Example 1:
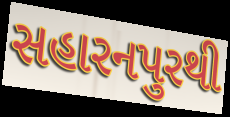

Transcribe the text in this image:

સહારનપુરથી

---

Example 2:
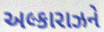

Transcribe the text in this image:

અલ્કારાઝને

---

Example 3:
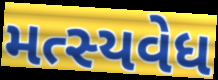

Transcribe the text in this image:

મત્સ્યવેધ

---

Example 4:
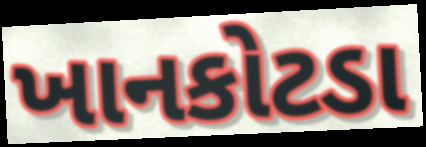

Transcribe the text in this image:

ખાનકોટડા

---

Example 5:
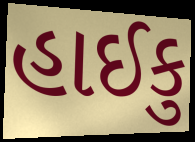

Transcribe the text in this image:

હાઈકુ